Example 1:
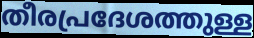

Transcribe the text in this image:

തീരപ്രദേശത്തുള്ള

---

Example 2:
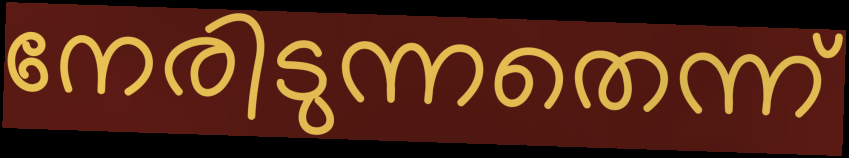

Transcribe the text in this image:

നേരിടുന്നതെന്ന്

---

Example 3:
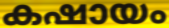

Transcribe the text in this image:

കഷായം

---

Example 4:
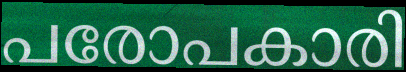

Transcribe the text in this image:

പരോപകാരി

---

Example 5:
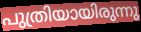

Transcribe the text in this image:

പുത്രിയായിരുന്നു